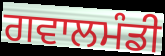
ਗਵਾਲਮੰਡੀ